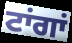
ਟਾਂਗਾਂ